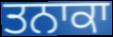
ਤਨਾਕਾ